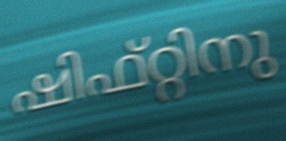
ഷിഫ്റ്റിനു